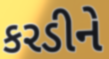
કરડીને